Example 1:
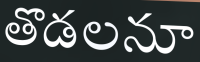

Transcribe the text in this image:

తొడలనూ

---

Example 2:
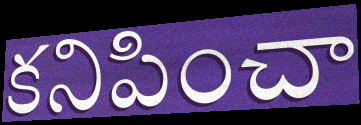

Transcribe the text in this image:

కనిపించా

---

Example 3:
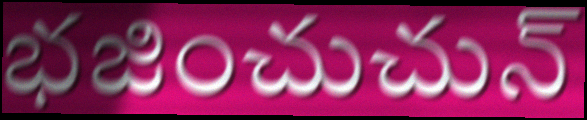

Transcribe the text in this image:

భజించుచున్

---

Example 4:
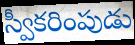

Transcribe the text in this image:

స్వీకరింపుడు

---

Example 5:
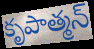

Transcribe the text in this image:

కృపాత్మన్